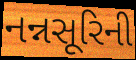
નન્નસૂરિની